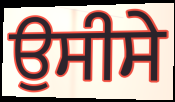
ਉਸੀਸੇ